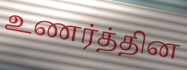
உணர்த்தின